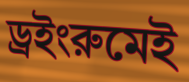
ড্রইংরুমেই